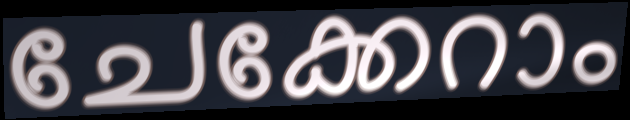
ചേക്കേറാം